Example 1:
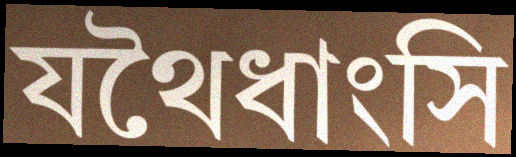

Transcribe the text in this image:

যথৈধাংসি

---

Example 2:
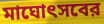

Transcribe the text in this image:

মাঘোৎসবের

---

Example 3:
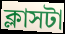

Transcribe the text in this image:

ক্লাসটা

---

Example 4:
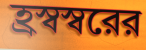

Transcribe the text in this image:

হ্রস্বস্বরের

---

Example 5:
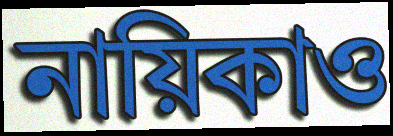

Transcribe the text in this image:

নায়িকাও